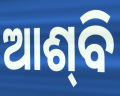
ଆଶ୍‍ବି